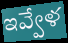
ఇవ్వేళ